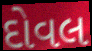
દોવલ